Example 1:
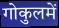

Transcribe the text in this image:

गोकुलमें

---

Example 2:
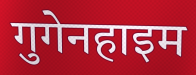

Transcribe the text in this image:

गुगेनहाइम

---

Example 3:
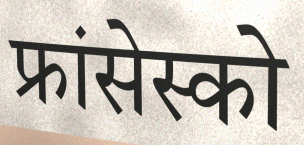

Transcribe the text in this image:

फ्रांसेस्को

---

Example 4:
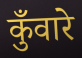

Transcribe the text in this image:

कुँवारे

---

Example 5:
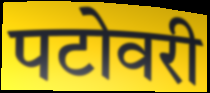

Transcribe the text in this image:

पटोवरी